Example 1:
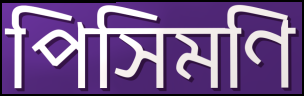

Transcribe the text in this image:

পিসিমণি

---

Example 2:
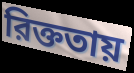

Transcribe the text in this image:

রিক্ততায়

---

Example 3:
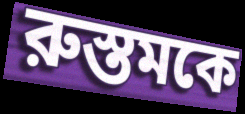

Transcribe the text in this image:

রুস্তমকে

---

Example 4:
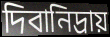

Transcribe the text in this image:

দিবানিদ্রায়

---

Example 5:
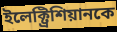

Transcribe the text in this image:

ইলেক্ট্রিশিয়ানকে